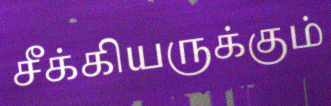
சீக்கியருக்கும்